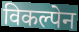
विकल्पेन